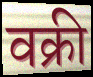
वक्री